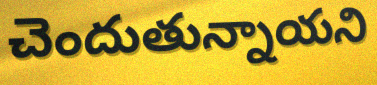
చెందుతున్నాయని